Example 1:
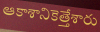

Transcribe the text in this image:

ఆకాశానికెత్తేశారు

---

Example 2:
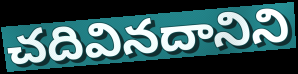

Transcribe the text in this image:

చదివినదానిని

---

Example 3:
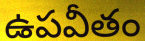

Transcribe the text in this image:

ఉపవీతం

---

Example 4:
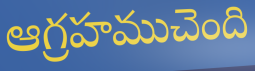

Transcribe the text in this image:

ఆగ్రహముచెంది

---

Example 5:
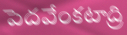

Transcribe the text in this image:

పెదవేంకటాద్రి